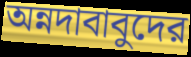
অন্নদাবাবুদের